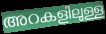
അറകളിലുള്ള